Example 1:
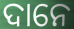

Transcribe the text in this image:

ଦାନେ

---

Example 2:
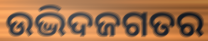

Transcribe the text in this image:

ଉଦ୍ଭିଦଜଗତର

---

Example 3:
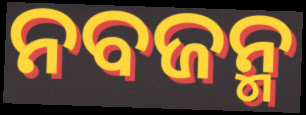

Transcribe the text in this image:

ନବଜନ୍ମ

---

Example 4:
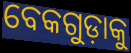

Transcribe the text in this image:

ବେକଗୁଡ଼ାକୁ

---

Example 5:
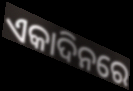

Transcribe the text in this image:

ଏକାଦିନରେ